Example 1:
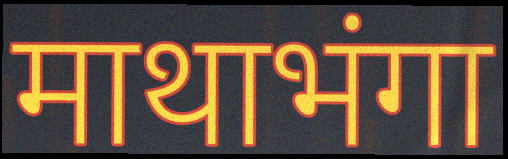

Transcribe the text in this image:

माथाभंगा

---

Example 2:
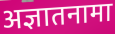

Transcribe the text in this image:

अज्ञातनामा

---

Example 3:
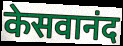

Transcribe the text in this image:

केसवानंद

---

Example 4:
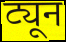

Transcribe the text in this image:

ट्यून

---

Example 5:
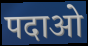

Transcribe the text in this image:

पदाओ